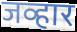
जव्हार